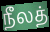
நீலத்